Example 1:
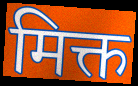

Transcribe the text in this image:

मिक्त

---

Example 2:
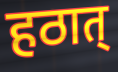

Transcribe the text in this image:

हठात्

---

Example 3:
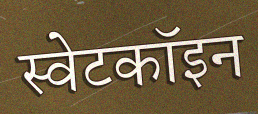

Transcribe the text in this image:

स्वेटकॉइन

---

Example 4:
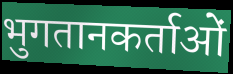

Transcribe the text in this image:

भुगतानकर्ताओं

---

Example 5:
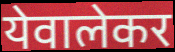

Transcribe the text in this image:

येवालेकर